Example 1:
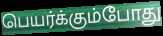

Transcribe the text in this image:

பெயர்க்கும்போது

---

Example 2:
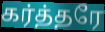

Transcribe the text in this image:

கர்த்தரே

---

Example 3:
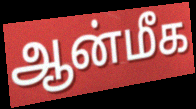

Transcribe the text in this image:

ஆன்மீக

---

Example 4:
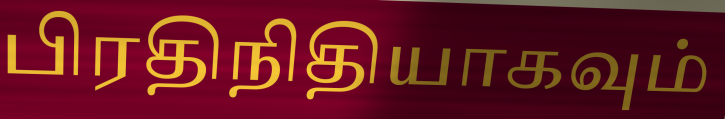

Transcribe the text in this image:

பிரதிநிதியாகவும்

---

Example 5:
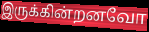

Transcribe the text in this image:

இருக்கின்றனவோ